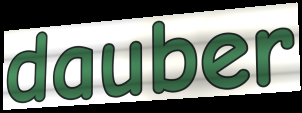
dauber